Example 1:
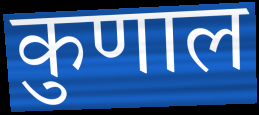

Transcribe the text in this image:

कुणाल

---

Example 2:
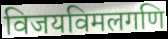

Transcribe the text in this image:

विजयविमलगणि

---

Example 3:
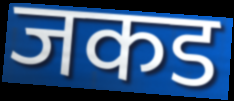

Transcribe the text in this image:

जकड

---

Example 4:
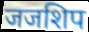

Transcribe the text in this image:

जजशिप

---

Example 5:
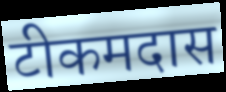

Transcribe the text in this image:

टीकमदास